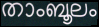
താംബൂലം